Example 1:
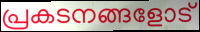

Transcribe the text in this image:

പ്രകടനങ്ങളോട്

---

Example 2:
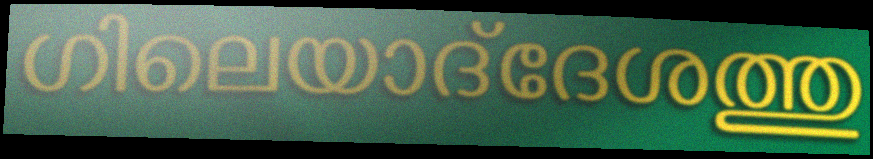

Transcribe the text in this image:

ഗിലെയാദ്‌ദേശത്തു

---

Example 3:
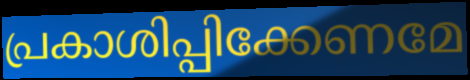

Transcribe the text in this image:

പ്രകാശിപ്പിക്കേണമേ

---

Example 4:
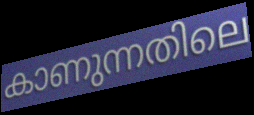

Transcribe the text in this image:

കാണുന്നതിലെ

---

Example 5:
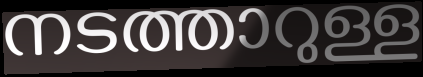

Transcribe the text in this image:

നടത്താറുള്ള